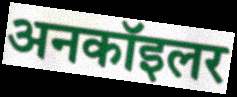
अनकॉइलर